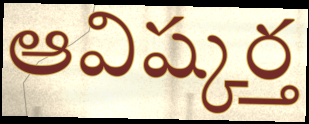
ఆవిష్కర్త